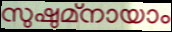
സുഷുമ്നായാം